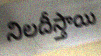
నిలదీస్తాయి